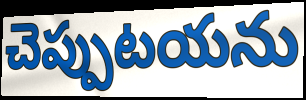
చెప్పుటయను